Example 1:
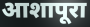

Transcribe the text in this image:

आशापूरा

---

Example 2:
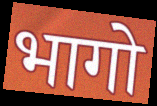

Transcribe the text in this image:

भागो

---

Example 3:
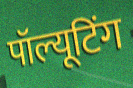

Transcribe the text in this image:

पॉल्यूटिंग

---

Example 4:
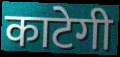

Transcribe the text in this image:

काटेगी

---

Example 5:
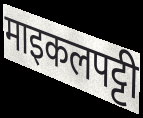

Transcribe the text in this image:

माइकलपट्टी